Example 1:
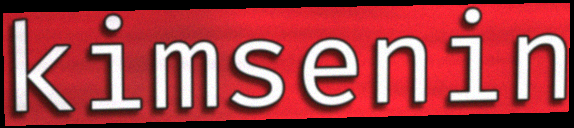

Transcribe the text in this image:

kimsenin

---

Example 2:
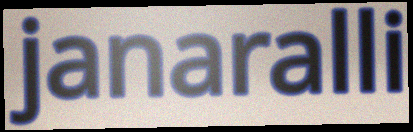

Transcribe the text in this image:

janaralli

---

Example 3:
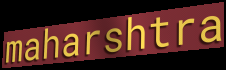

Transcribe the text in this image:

maharshtra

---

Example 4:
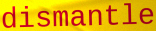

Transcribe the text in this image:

dismantle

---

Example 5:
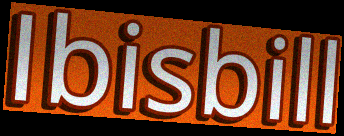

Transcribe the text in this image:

Ibisbill